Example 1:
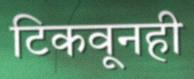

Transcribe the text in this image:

टिकवूनही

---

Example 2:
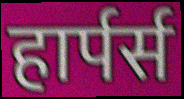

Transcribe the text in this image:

हार्पर्स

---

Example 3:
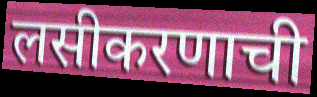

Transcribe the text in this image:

लसीकरणाची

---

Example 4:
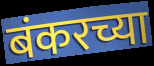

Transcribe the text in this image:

बंकरच्या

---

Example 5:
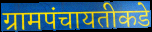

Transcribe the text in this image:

ग्रामपंचायतीकडे